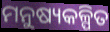
ମନୁଷ୍ୟକଳ୍ପିତ